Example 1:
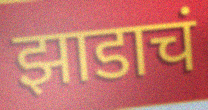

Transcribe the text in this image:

झाडाचं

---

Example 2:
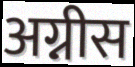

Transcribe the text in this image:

अग्नीस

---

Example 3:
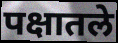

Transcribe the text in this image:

पक्षातले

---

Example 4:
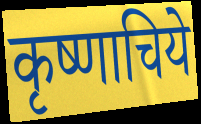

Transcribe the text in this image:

कृष्णाचिये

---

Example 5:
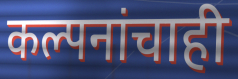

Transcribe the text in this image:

कल्पनांचाही